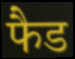
फैड